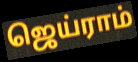
ஜெய்ராம்